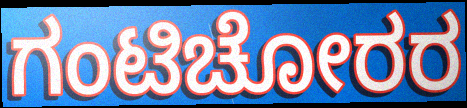
ಗಂಟಿಚೋರರ